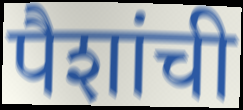
पैशांची